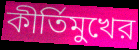
কীর্তিমুখের